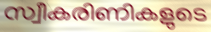
സ്വീകരിണികളുടെ